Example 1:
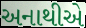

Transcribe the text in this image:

અનાથીએ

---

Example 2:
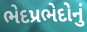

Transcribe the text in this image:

ભેદપ્રભેદોનું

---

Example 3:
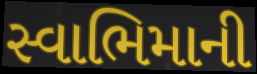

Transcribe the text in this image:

સ્વાભિમાની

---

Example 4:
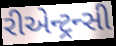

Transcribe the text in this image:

રીએન્ટ્રન્સી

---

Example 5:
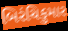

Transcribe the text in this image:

બિરંચિકુમાર